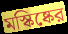
মস্কিষ্কের